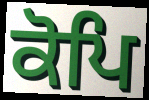
ਕੋਪਿ